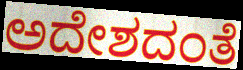
ಅದೇಶದಂತೆ